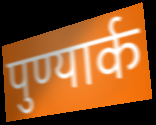
पुण्यार्क